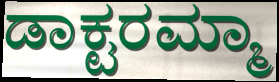
ಡಾಕ್ಟರಮ್ಮಾ